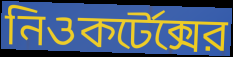
নিওকর্টেক্সের